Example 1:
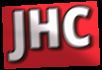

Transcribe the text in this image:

JHC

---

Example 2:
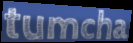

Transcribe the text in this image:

tumcha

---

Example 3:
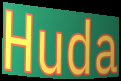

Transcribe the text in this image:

Huda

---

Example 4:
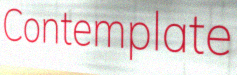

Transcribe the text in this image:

Contemplate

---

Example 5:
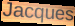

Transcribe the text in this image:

Jacques